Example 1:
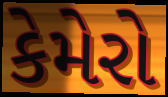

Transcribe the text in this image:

કેમેરો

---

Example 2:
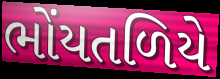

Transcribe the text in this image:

ભોંયતળિયે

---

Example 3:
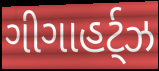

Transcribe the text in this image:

ગીગાહર્ટ્ઝ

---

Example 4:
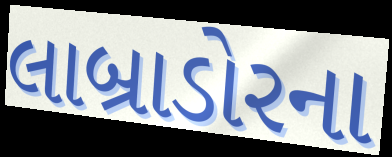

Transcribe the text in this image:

લાબ્રાડોરના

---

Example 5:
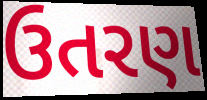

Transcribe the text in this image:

ઉતરણ